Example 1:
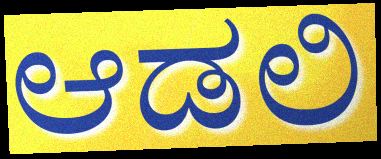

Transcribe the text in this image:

ಆಡಲಿ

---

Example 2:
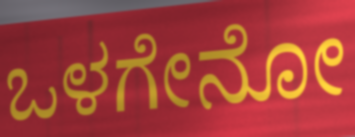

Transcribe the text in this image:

ಒಳಗೇನೋ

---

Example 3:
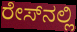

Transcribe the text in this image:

ರೇಸ್‍ನಲ್ಲಿ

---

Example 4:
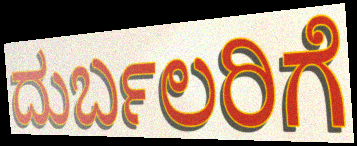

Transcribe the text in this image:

ದುರ್ಬಲರಿಗೆ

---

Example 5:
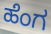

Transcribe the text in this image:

ಹೆಂಗ